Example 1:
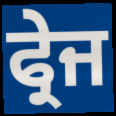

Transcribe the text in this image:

ਫ੍ਰੇਜ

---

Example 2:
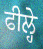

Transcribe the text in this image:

ਫੀਲ੍ਹੇ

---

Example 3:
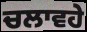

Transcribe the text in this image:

ਚਲਾਵਹੇ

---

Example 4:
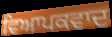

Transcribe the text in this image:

ਵਿਆਪਕਵਾਦ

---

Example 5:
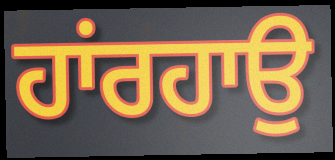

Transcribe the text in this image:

ਹਾਂਰਹਾਉ